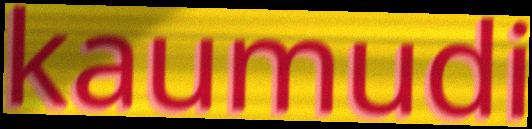
kaumudi